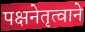
पक्षनेतृत्वाने